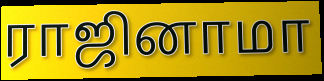
ராஜினாமா